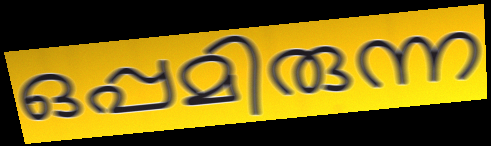
ഒപ്പമിരുന്ന